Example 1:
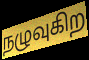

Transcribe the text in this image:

நழுவுகிற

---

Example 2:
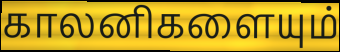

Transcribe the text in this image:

காலனிகளையும்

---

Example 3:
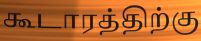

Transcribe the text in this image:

கூடாரத்திற்கு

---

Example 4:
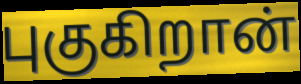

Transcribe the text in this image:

புகுகிறான்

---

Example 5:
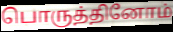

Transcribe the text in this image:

பொருத்தினோம்